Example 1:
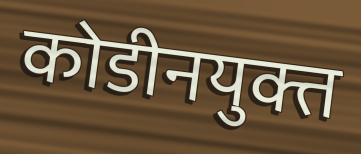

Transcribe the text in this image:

कोडीनयुक्त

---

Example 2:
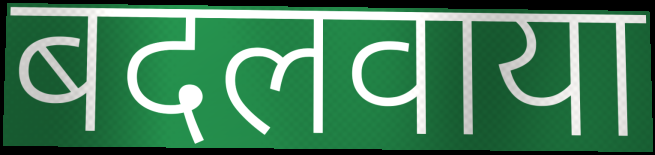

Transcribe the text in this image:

बदलवाया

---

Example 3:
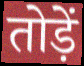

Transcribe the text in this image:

तोड़ें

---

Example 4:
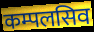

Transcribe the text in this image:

कम्पलसिव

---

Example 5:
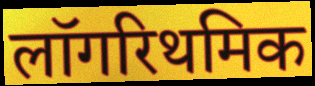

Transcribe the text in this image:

लॉगरिथमिक